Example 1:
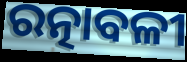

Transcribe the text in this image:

ରତ୍ନାବଳୀ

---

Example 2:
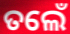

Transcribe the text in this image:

ତଲେଁ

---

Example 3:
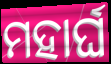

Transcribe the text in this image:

ମହାର୍ଘ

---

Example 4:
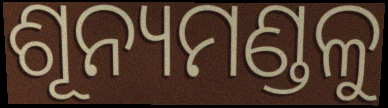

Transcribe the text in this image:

ଶୂନ୍ୟମଣ୍ଡଳୁ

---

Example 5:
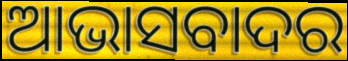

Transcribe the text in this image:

ଆଭାସବାଦର